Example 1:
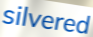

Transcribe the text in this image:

silvered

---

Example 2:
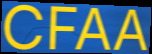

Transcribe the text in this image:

CFAA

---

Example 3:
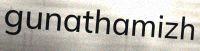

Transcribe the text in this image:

gunathamizh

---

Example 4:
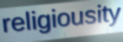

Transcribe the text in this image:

religiousity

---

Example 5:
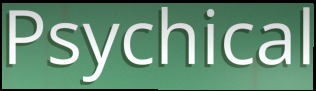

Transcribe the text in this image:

Psychical